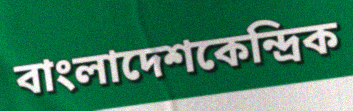
বাংলাদেশকেন্দ্রিক